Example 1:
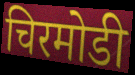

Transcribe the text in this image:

चिरमोडी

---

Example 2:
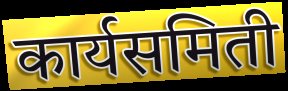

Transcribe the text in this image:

कार्यसमिती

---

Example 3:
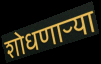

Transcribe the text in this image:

शोधणाऱ्या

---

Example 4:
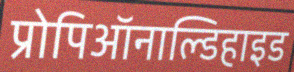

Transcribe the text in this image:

प्रोपिऑनाल्डिहाइड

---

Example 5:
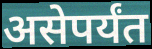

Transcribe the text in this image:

असेपर्यंत